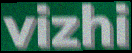
vizhi